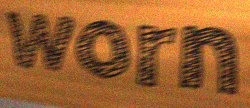
worn